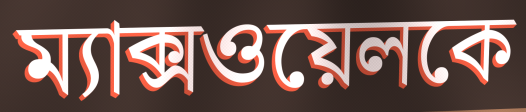
ম্যাক্সওয়েলকে